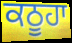
ਕਠੂਹਾ